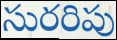
సురరిపు